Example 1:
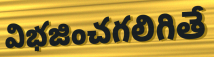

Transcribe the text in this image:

విభజించగలిగితే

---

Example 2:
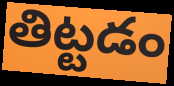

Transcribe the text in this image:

తిట్టడం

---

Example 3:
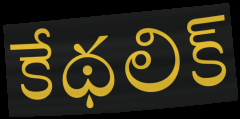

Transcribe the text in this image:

కేథలిక్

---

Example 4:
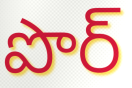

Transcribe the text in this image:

పొర్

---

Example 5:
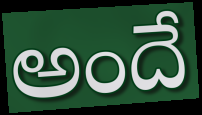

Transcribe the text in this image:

అందే